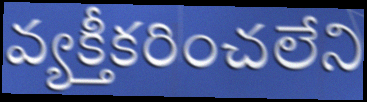
వ్యక్తీకరించలేని